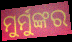
ମୁର୍ମୁଙ୍କର